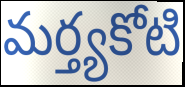
మర్త్యకోటి